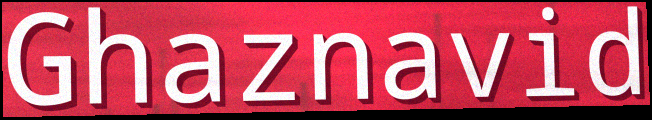
Ghaznavid